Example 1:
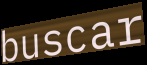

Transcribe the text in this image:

buscar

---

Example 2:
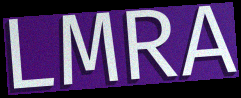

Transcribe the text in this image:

LMRA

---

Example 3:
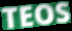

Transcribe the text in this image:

TEOS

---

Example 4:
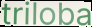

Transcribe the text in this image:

triloba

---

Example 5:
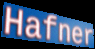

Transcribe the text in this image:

Hafner